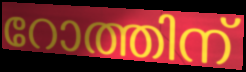
റോത്തിന്